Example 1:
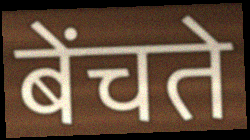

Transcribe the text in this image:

बेंचते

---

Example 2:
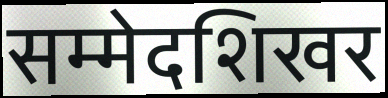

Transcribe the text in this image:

सम्मेदशिखर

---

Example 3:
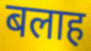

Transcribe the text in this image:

बलाह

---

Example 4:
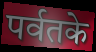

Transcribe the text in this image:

पर्वतके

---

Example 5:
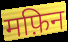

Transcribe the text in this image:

मफ़िन